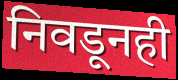
निवडूनही